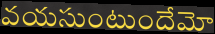
వయసుంటుందేమో